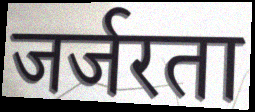
जर्जरता